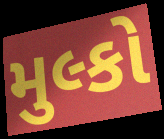
મુલ્કો